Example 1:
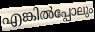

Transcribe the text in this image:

എങ്കിൽപ്പോലും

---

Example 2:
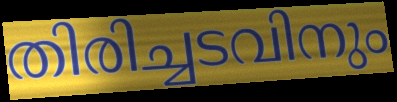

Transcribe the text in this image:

തിരിച്ചടവിനും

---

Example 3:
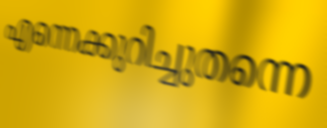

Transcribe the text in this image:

എന്നെക്കുറിച്ചുതന്നെ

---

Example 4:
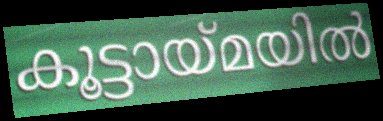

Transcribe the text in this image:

കൂട്ടായ്മയിൽ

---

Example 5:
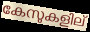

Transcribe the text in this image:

കേസുകളില്